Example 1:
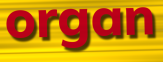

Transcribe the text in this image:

organ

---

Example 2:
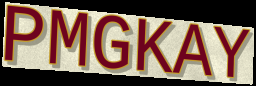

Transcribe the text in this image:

PMGKAY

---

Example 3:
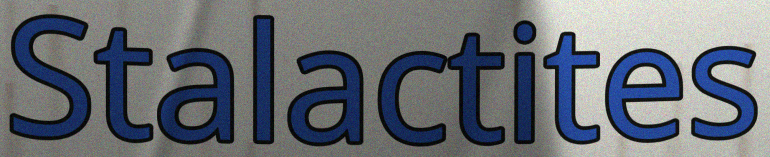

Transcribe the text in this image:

Stalactites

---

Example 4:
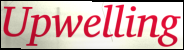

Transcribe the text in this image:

Upwelling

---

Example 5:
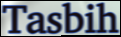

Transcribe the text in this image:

Tasbih